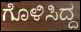
ಗೊಳಿಸಿದ್ದ